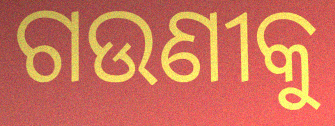
ଗଉଣୀକୁ